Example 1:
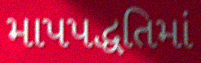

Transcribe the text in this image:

માપપદ્ધતિમાં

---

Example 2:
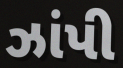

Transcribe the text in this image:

ઝાંપી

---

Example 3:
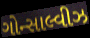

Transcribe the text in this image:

ગોન્સાલ્વીઝ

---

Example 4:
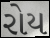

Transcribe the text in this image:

રોય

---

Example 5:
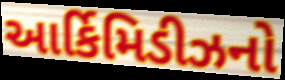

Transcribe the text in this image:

આર્કિમિડીઝનો